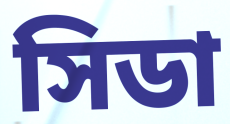
সিডা